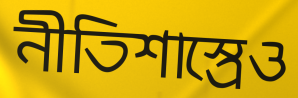
নীতিশাস্ত্রেও